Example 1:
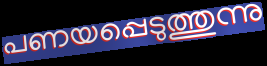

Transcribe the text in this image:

പണയപ്പെടുത്തുന്നു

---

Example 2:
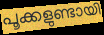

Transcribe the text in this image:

പൂക്കളുണ്ടായി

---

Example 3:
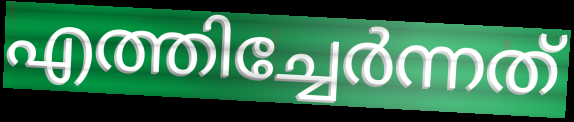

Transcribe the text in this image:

എത്തിച്ചേർന്നത്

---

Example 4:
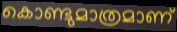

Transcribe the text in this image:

കൊണ്ടുമാത്രമാണ്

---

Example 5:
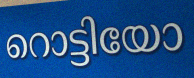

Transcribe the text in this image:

റൊട്ടിയോ